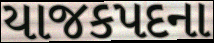
યાજકપદના